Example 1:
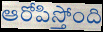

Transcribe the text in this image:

ఆరోపిస్తోంది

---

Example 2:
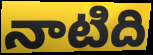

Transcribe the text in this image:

నాటిది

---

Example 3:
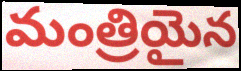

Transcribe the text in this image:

మంత్రియైన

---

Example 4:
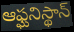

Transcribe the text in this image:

ఆఫ్ఘనిస్థాన్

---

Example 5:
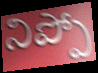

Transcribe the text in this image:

నిప్పో